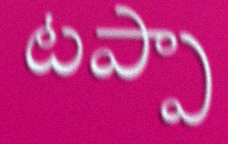
టప్పా